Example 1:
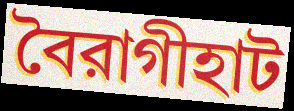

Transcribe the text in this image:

বৈরাগীহাট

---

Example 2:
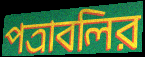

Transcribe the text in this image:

পত্রাবলির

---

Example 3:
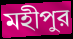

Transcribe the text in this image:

মহীপুর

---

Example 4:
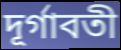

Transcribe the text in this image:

দূর্গাবতী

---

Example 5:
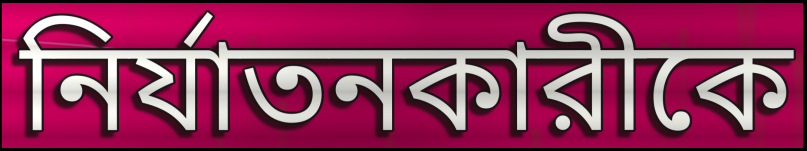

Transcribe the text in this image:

নির্যাতনকারীকে